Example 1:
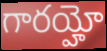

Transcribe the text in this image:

గారయ్హో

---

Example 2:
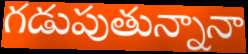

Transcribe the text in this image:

గడుపుతున్నానా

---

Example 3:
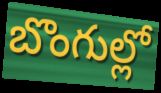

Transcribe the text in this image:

బొంగుల్లో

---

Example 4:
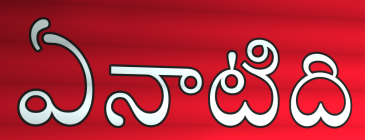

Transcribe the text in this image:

ఏనాటిది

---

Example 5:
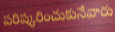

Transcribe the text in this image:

పరిష్కరించుకునేవారు